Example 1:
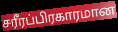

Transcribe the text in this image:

சரீரப்பிரகாரமான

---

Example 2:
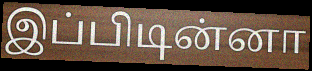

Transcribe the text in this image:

இப்பிடின்னா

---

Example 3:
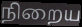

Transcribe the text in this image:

நிறைய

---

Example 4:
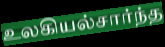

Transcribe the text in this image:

உலகியல்சார்ந்த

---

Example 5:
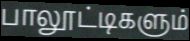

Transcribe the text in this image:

பாலூட்டிகளும்